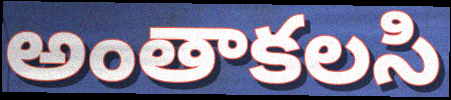
అంతాకలసి